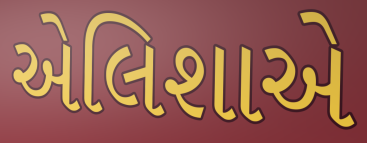
એલિશાએ